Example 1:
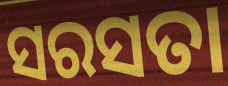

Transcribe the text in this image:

ସରସତା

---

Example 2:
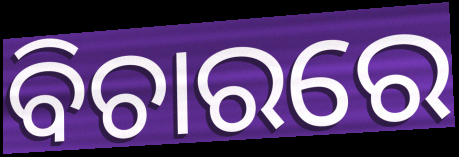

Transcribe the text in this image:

ବିଚାରରେ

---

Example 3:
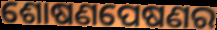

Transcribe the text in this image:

ଶୋଷଣପେଷଣର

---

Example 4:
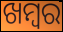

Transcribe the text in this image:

ଖମ୍ବର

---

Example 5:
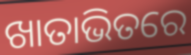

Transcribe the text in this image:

ଖାତାଭିତରେ